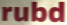
rubd